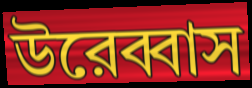
উরেব্বাস